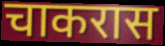
चाकरास